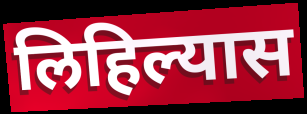
लिहिल्यास